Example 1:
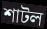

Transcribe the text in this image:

শাটল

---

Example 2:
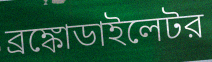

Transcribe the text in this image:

ব্রঙ্কোডাইলেটর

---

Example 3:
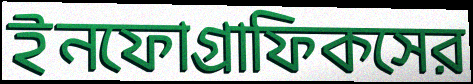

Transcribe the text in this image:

ইনফোগ্রাফিকসের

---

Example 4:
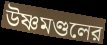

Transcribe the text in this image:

উষ্ণমণ্ডলের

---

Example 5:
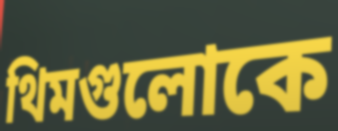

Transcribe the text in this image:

থিমগুলোকে